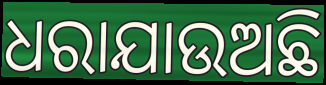
ଧରାଯାଉଅଛି